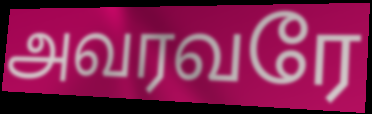
அவரவரே